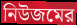
নিউজমের